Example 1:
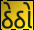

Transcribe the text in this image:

ઠેઠો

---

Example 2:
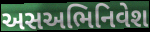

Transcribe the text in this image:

અસઅભિનિવેશ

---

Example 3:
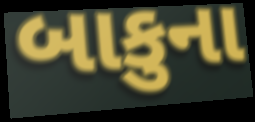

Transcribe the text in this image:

બાકુના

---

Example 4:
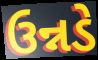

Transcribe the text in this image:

ઉન્નડે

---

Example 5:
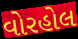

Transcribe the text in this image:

વોરહોલ